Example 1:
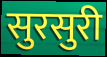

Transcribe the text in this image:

सुरसुरी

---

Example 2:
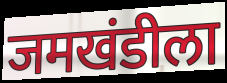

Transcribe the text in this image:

जमखंडीला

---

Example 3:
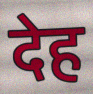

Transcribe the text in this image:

देह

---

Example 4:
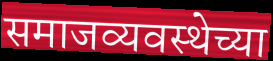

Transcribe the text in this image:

समाजव्यवस्थेच्या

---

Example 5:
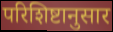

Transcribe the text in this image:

परिशिष्टानुसार